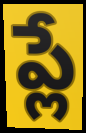
ప్లే